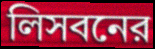
লিসবনের